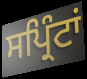
ਸਪ੍ਰਿੰਟਾਂ